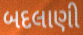
બદલાણી